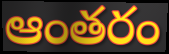
ఆంతరం